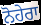
ਨੋਹੇਰਾ